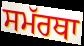
ਸਮੱਰਥਾ